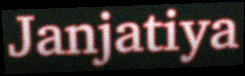
Janjatiya